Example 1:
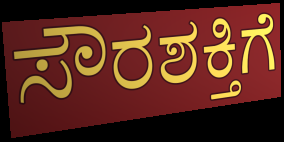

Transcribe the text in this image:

ಸೌರಶಕ್ತಿಗೆ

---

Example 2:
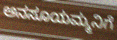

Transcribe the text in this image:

ಅನಸೂಯಮ್ಮನಿಗೆ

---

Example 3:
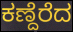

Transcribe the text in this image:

ಕಣ್ದೆರೆದ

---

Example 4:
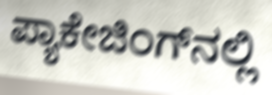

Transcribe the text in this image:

ಪ್ಯಾಕೇಜಿಂಗ್‌ನಲ್ಲಿ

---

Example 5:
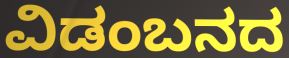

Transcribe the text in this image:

ವಿಡಂಬನದ